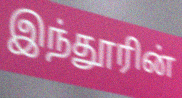
இந்தூரின்